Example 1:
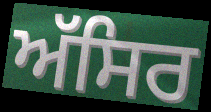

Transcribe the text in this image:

ਅੱਸਿਰ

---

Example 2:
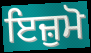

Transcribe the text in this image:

ਇਜ਼ੁਮੋ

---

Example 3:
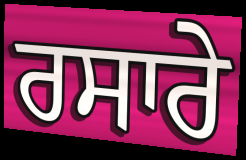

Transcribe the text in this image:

ਰਸਾਰੇ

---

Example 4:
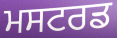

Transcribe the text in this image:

ਮਸਟਰਡ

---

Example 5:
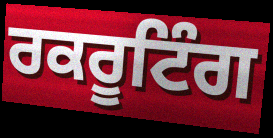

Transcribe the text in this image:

ਰਕਰੂਟਿੰਗ